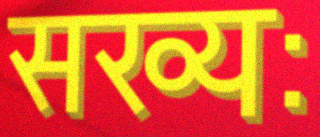
सख्यः